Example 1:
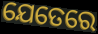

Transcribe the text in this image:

ଯେତେରେ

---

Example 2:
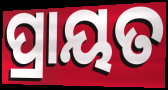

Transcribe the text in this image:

ପ୍ରାୟତ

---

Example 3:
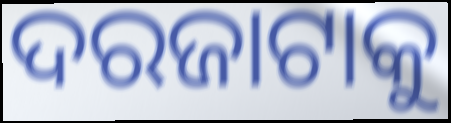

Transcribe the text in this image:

ଦରଜାଟାକୁ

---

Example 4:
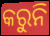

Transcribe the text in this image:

କରୁନି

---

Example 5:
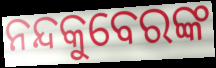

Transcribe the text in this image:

ନନ୍ଦକୁବେରଙ୍କ